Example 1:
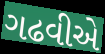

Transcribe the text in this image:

ગઢવીએ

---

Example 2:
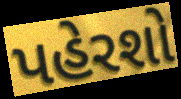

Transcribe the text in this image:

પહેરશો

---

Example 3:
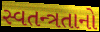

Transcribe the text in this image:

સ્વતન્ત્રતાનો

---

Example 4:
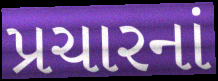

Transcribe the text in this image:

પ્રચારનાં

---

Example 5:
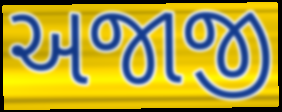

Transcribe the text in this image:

અજાજી